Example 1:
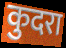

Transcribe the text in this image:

कुदरा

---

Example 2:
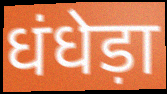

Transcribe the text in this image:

धंधेड़ा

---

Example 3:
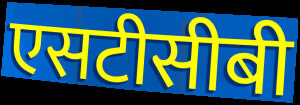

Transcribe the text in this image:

एसटीसीबी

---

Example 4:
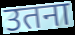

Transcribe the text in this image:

उतना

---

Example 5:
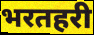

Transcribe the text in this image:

भरतहरी